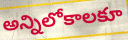
అన్నిలోకాలకూ